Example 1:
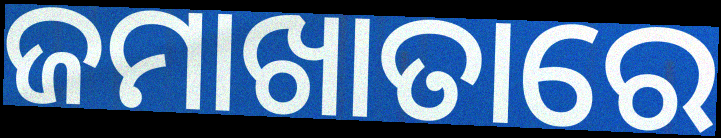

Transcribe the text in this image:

ଜମାଖାତାରେ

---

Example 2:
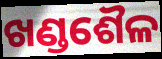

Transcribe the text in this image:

ଖଣ୍ଡଶୈଳ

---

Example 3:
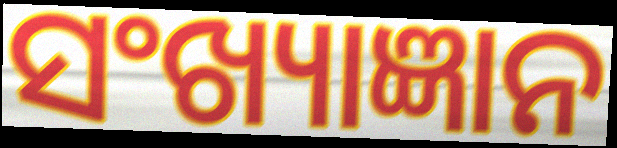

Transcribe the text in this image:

ସଂଖ୍ୟାଜ୍ଞାନ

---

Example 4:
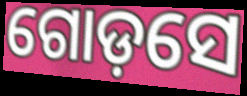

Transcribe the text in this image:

ଗୋଡ଼ସେ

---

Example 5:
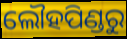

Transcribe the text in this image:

ଲୌହପିଣ୍ଡରୁ